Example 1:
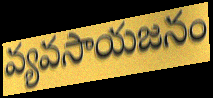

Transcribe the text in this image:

వ్యవసాయజనం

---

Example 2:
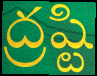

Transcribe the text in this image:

ద్రష్టి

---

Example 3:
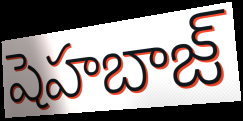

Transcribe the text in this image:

షెహబాజ్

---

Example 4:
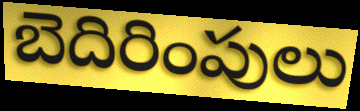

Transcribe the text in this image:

బెదిరింపులు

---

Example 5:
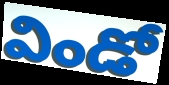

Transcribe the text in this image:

విండో